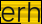
erh